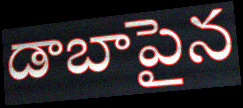
డాబాపైన